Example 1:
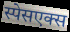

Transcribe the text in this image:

स्‍पेसएक्‍स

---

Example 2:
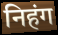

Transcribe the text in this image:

निहंग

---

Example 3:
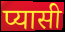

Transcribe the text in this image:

प्यासी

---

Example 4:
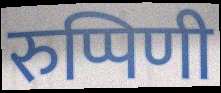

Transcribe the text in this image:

रुप्पिणी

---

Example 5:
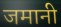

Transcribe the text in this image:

जमानी